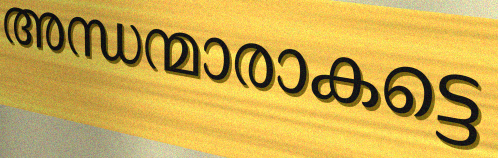
അന്ധന്മാരാകട്ടെ